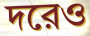
দরেও